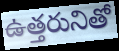
ఉత్తరునితో